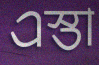
এস্তা